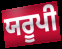
ਯਰੂਪੀ